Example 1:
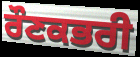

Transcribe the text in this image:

ਰੌਣਕਭਰੀ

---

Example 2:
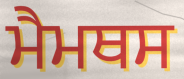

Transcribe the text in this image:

ਮੈਮਥਸ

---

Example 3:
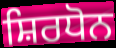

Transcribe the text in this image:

ਸ਼ਿਰਧੋਨ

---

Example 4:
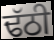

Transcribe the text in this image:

ਢੱਠੀ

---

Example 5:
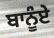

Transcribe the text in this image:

ਬਾਨੂੰਏ